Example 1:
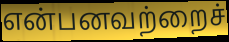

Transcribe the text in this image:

என்பனவற்றைச்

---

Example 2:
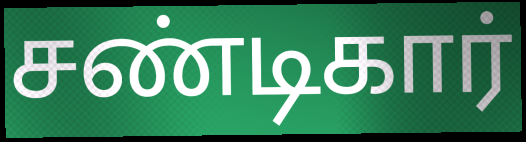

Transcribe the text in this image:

சண்டிகார்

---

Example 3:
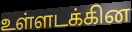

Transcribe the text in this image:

உள்ளடக்கின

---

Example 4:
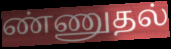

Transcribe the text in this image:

ண்ணுதல்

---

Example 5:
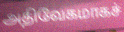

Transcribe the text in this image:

அதிவேகமாகச்